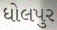
ધોલપુર